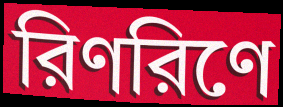
রিণরিণে